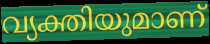
വ്യക്തിയുമാണ്